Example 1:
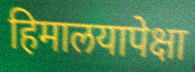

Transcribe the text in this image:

हिमालयापेक्षा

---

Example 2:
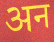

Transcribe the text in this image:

अन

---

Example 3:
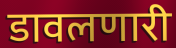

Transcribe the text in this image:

डावलणारी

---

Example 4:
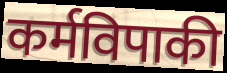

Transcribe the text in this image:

कर्मविपाकी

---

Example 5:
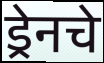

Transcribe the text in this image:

ड्रेनचे